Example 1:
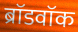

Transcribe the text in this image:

ब्रॉडवॉक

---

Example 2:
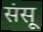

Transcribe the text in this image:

संसू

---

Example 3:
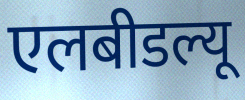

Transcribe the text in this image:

एलबीडल्यू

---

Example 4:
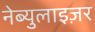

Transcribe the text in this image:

नेब्युलाइज़र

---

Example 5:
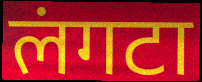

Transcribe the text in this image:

लंगटा